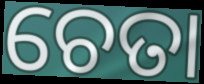
ଚେତା